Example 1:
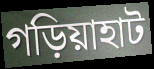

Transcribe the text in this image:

গড়িয়াহাট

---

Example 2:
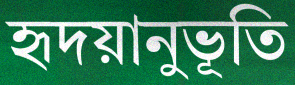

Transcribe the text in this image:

হৃদয়ানুভূতি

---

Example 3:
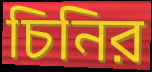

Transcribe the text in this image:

চিনির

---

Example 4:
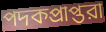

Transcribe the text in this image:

পদকপ্রাপ্তরা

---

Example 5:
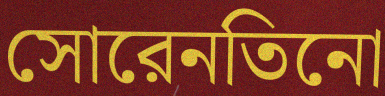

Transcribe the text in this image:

সোরেনতিনো